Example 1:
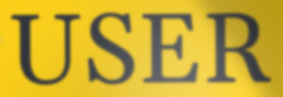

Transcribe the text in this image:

USER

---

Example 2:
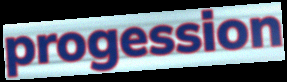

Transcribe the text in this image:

progession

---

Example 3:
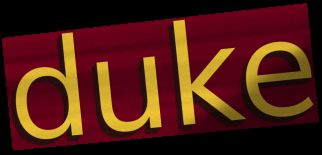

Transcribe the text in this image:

duke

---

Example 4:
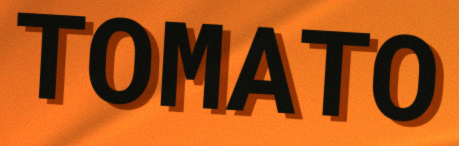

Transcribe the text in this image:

TOMATO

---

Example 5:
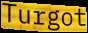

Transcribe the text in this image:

Turgot